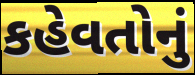
કહેવતોનું